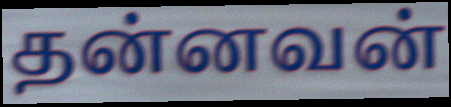
தன்னவன்